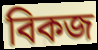
বিকজ